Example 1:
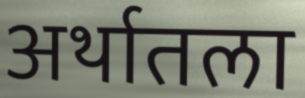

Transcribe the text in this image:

अर्थातला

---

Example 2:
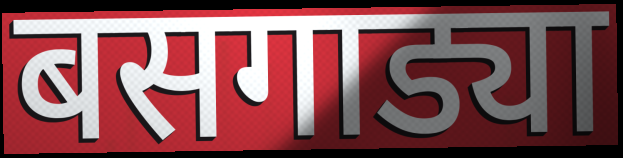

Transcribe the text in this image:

बसगाड्या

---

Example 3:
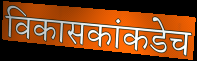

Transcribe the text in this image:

विकासकांकडेच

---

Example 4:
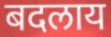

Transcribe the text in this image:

बदलाय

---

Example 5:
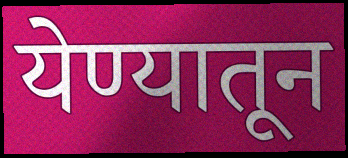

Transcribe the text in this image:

येण्यातून